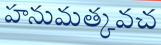
హనుమత్కవచ